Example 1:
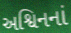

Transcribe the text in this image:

અશ્વિનનાં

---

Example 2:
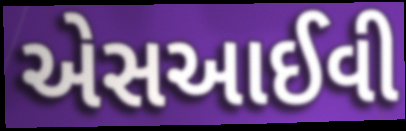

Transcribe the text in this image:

એસઆઈવી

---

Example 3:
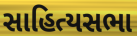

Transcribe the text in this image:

સાહિત્યસભા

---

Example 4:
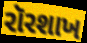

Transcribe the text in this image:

રૉરશાખ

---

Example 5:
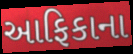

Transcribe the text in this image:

આફિકાના